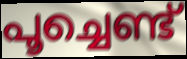
പൂച്ചെണ്ട്